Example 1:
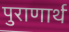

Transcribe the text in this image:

पुराणार्थ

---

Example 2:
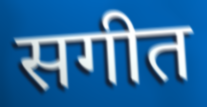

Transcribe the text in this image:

सगीत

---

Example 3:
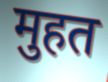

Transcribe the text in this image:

मुहत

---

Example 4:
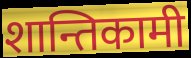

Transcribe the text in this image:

शान्तिकामी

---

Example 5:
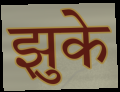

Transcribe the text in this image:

झुके